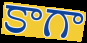
కాగా